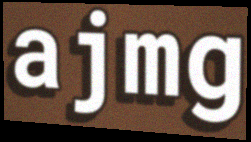
ajmg